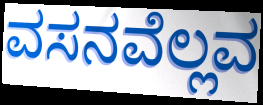
ವಸನವೆಲ್ಲವ